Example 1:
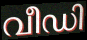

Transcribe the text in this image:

വീഡി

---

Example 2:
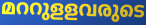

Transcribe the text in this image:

മററുളളവരുടെ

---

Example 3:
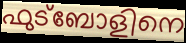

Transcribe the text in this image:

ഫുട്ബോളിനെ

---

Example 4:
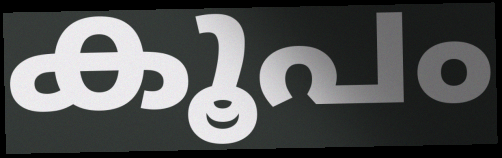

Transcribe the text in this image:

കൂപം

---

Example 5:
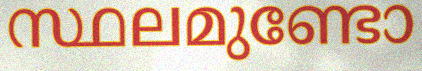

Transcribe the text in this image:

സ്ഥലമുണ്ടോ